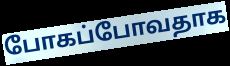
போகப்போவதாக